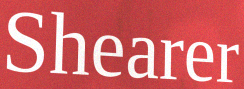
Shearer